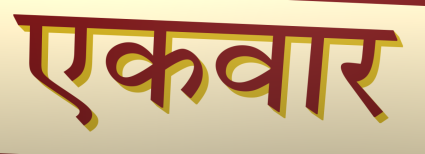
एकवार